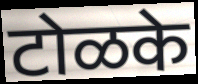
टोळके